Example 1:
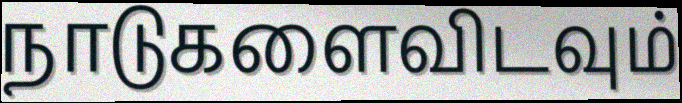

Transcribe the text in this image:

நாடுகளைவிடவும்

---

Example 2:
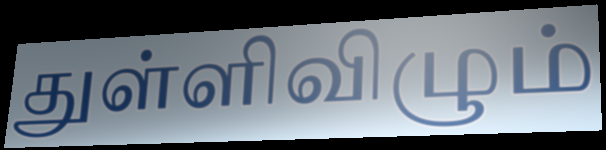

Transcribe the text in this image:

துள்ளிவிழும்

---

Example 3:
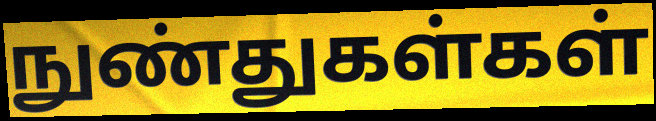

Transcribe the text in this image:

நுண்துகள்கள்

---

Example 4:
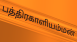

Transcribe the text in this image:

பத்திரகாளியம்மன்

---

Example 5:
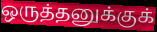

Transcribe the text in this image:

ஒருத்தனுக்குக்